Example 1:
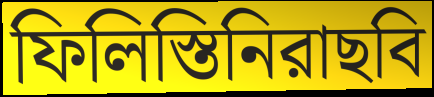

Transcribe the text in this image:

ফিলিস্তিনিরাছবি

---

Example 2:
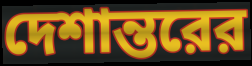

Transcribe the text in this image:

দেশান্তরের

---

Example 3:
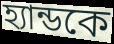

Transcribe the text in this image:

হ্যান্ডকে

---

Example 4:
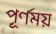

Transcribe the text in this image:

পূর্ণময়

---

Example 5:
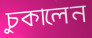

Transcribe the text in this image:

চুকালেন